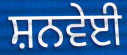
ਸ਼ਨਵੇਈ